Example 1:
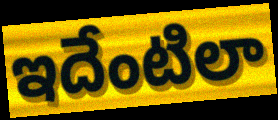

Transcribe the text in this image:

ఇదేంటిలా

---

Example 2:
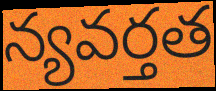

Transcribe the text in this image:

న్యవర్తత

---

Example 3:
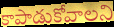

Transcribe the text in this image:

కాపాడుకోవాలని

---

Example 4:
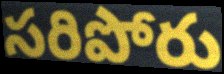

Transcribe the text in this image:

సరిపోరు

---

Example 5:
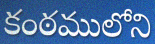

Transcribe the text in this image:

కంఠములోని